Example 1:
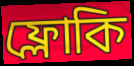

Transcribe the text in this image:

ফ্লোকি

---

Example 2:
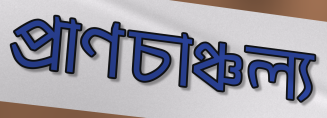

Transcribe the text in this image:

প্রাণচাঞ্চল্য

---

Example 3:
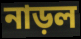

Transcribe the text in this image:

নাড়ল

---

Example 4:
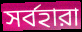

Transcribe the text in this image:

সর্বহারা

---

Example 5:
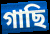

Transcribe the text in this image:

গাছি